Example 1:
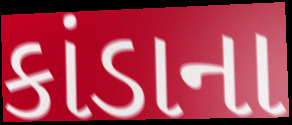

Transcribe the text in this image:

કાંડાના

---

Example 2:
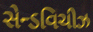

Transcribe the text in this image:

સેન્ડવિચીઝ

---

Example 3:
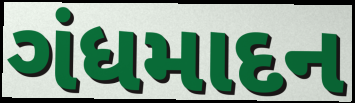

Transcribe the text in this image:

ગંધમાદન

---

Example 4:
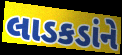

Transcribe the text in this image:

લાડકડાંને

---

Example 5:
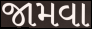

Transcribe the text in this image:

જામવા